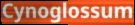
Cynoglossum